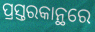
ପ୍ରସ୍ତରକାନ୍ଥରେ